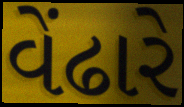
વેંઢારે